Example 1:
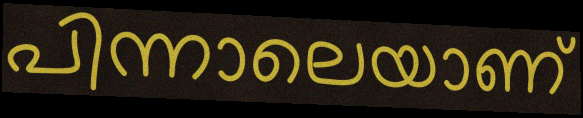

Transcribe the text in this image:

പിന്നാലെയാണ്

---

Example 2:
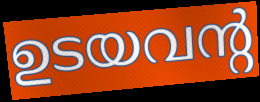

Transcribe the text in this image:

ഉടയവന്റ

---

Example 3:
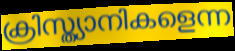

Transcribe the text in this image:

ക്രിസ്ത്യാനികളെന്ന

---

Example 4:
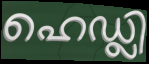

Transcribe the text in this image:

ഹെഡ്ലി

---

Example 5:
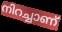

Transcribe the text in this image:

നിറച്ചാണ്